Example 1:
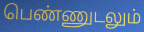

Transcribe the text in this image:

பெண்ணுடலும்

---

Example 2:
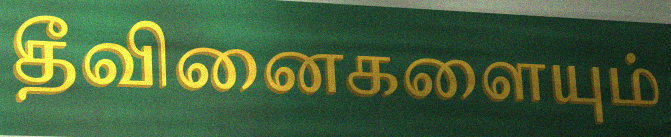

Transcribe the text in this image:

தீவினைகளையும்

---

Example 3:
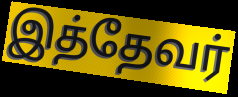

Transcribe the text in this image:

இத்தேவர்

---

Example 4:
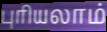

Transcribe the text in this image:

புரியலாம்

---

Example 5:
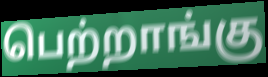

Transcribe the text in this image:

பெற்றாங்கு